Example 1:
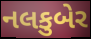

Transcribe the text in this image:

નલકુબેર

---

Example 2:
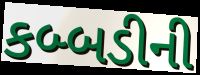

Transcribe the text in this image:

કબ્બડીની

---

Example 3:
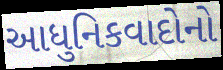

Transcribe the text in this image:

આધુનિકવાદોનો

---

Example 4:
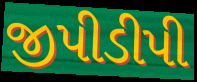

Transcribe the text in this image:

જીપીડીપી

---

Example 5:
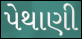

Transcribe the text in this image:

પેથાણી